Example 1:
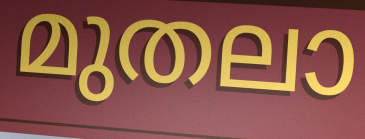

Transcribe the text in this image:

മുതലാ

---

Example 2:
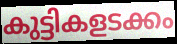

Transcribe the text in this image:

കുട്ടികളടക്കം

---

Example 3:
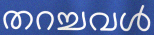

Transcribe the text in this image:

തറച്ചവൾ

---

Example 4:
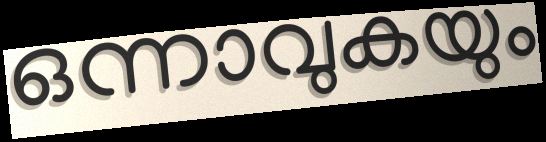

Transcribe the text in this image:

ഒന്നാവുകയും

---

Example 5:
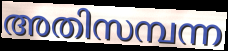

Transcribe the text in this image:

അതിസമ്പന്ന